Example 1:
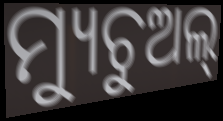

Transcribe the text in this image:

ମ୍ୟୁଚୁଅଲ୍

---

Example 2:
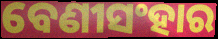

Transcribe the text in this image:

ବେଣୀସଂହାର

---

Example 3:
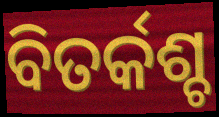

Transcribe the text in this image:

ବିତର୍କଶ୍ଚ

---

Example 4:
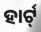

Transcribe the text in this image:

ହାର୍ଟ୍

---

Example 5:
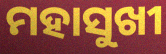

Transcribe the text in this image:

ମହାସୁଖୀ